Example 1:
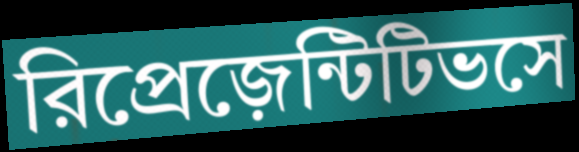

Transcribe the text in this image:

রিপ্রেজ়েন্টিটিভসে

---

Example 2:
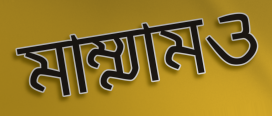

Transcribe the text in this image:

মাম্মামও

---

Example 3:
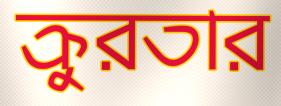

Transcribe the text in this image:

ক্রুরতার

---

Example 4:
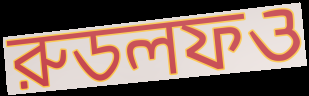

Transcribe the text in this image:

রুডলফও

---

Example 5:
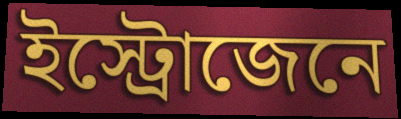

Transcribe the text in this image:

ইস্ট্রোজেনে